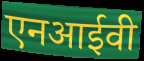
एनआईवी